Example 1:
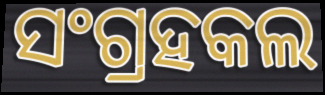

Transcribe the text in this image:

ସଂଗ୍ରହକଲ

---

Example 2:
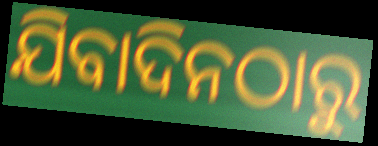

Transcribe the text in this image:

ଯିବାଦିନଠାରୁ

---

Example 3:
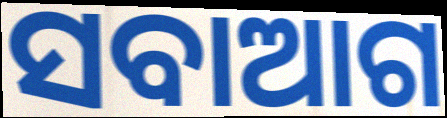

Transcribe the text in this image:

ସବାଆଗ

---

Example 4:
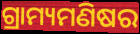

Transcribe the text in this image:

ଗ୍ରାମ୍ୟମଣିଷର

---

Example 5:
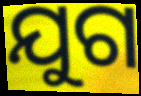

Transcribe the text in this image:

ଯୁଗ